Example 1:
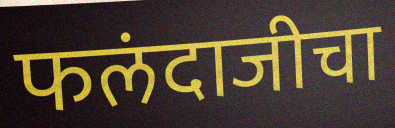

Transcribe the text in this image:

फलंदाजीचा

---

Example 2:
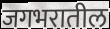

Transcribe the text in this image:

जगभरातील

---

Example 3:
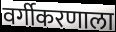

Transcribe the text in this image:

वर्गीकरणाला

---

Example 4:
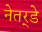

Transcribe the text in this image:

नेतर्डे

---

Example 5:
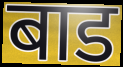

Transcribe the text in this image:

बाड